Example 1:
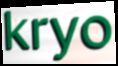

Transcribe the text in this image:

kryo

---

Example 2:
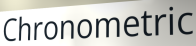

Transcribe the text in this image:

Chronometric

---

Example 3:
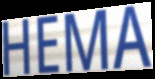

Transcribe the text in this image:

HEMA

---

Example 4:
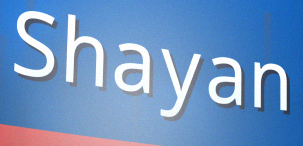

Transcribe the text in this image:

Shayan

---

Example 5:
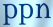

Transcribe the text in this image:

ppn